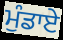
ਮੁੰਡਾਏ